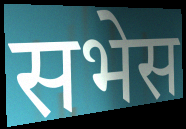
सभेस